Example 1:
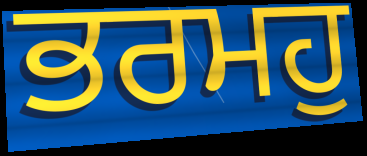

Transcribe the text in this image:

ਭਰਮਹੁ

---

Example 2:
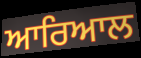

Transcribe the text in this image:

ਆਰਿਆਲ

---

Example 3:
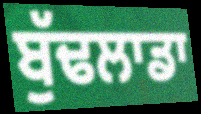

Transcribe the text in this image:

ਬੁੱਢਲਾਡਾ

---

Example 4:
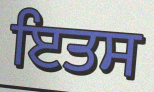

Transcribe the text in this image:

ਇਤਸ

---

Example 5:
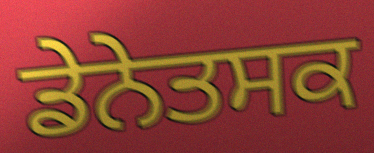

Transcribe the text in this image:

ਡੇਨੇਤਸਕ